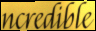
ncredible